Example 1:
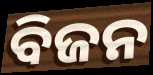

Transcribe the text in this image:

ବିଜନ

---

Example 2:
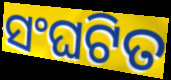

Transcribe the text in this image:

ସଂଘଟିତ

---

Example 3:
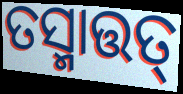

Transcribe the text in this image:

ତସ୍ମାତ୍ତତ୍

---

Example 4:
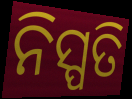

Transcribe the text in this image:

ନିସ୍ପତି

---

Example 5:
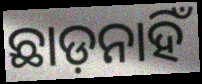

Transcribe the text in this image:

ଛାଡ଼ନାହିଁ